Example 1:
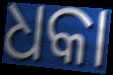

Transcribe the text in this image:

ଧକା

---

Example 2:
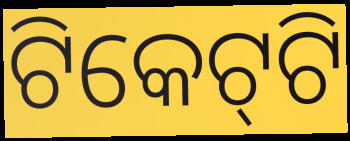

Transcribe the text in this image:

ଟିକେଟ୍‌ଟି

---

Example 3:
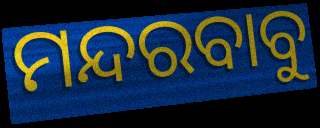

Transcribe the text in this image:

ମନ୍ଦରବାବୁ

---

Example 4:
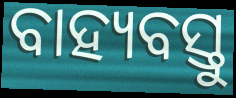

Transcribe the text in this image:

ବାହ୍ୟବସ୍ତୁ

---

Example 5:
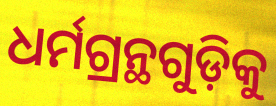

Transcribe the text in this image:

ଧର୍ମଗ୍ରନ୍ଥଗୁଡ଼ିକୁ